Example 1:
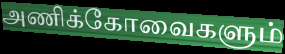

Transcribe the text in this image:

அணிக்கோவைகளும்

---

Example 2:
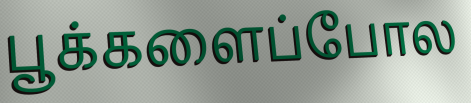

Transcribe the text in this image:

பூக்களைப்போல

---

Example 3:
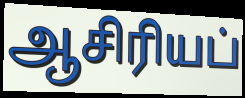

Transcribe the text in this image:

ஆசிரியப்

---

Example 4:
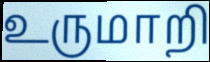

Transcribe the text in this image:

உருமாறி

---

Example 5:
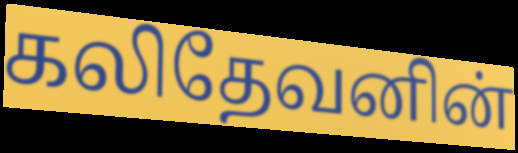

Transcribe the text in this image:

கலிதேவனின்